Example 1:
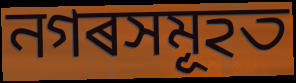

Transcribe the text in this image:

নগৰসমূহত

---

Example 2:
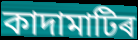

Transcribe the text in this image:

কাদামাটিৰ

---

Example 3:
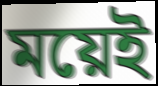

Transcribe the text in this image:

ময়েই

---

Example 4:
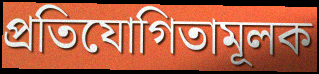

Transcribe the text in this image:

প্ৰতিযোগিতামূলক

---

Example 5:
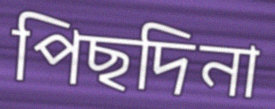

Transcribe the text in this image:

পিছদিনা